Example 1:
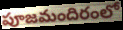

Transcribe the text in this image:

పూజమందిరంలో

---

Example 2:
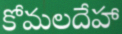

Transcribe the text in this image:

కోమలదేహా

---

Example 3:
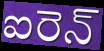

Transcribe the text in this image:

ఐరెన్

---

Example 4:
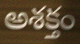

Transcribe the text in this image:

అశక్తం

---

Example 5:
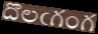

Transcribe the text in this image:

దొలఁగంగ